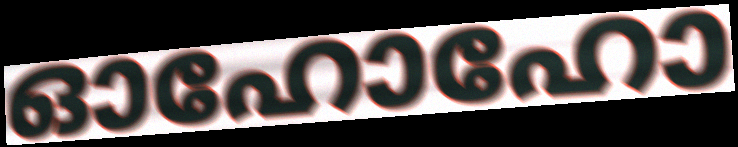
ഓഹോഹോ